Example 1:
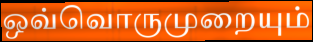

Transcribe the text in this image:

ஒவ்வொருமுறையும்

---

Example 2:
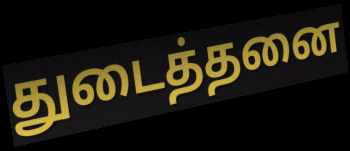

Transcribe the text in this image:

துடைத்தனை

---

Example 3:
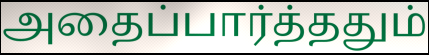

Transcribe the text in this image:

அதைப்பார்த்ததும்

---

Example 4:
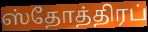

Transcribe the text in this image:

ஸ்தோத்திரப்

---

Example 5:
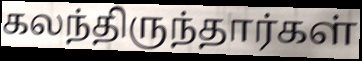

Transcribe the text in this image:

கலந்திருந்தார்கள்